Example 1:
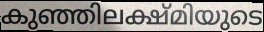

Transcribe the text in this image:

കുഞ്ഞിലക്ഷ്മിയുടെ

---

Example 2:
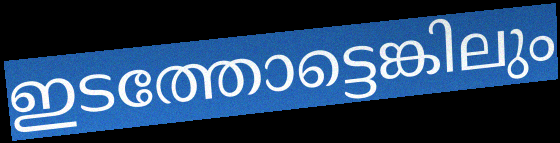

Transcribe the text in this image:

ഇടത്തോട്ടെങ്കിലും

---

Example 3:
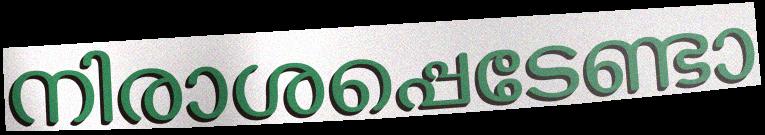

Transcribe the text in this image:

നിരാശപ്പെടേണ്ടാ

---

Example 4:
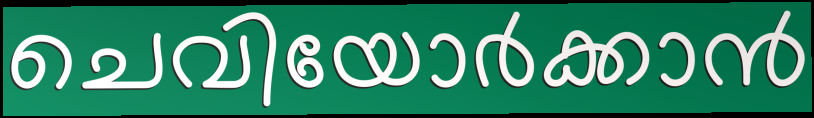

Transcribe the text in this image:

ചെവിയോർക്കാൻ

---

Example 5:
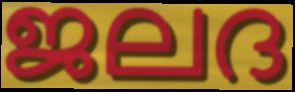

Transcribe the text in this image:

ജലദ